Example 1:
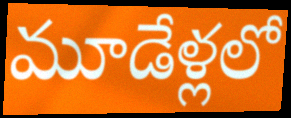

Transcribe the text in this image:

మూడేళ్లలో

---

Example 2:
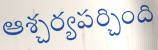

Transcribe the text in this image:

ఆశ్చర్యపర్చింది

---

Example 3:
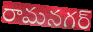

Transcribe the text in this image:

రామనగర్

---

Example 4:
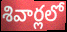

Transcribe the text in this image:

శివార్లలో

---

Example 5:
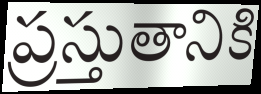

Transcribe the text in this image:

ప్రస్తుతానికి